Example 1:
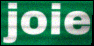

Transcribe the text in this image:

joie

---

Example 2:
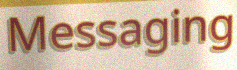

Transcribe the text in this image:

Messaging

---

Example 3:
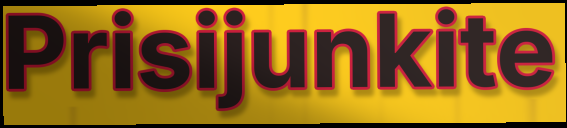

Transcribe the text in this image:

Prisijunkite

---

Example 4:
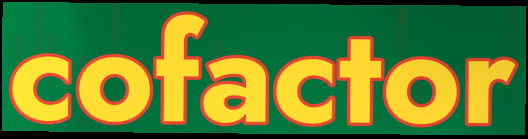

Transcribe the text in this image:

cofactor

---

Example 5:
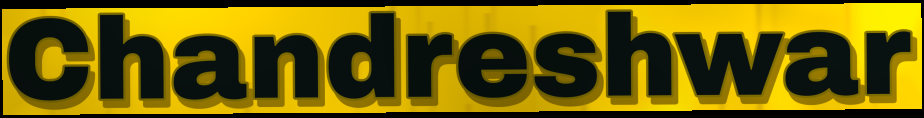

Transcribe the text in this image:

Chandreshwar